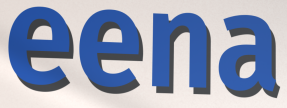
eena